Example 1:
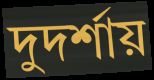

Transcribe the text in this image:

দুদর্শায়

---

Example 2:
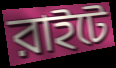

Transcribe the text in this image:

রাইটে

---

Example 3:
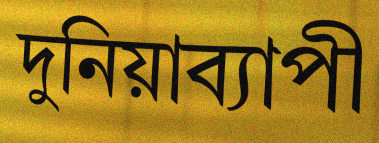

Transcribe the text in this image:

দুনিয়াব্যাপী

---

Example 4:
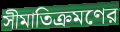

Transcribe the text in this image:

সীমাতিক্রমণের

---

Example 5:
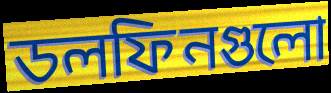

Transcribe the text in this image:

ডলফিনগুলো